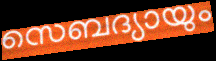
സെബദ്യായും